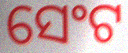
ସେଂଟ